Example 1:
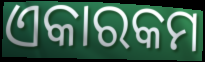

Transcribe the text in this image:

ଏକାରକମ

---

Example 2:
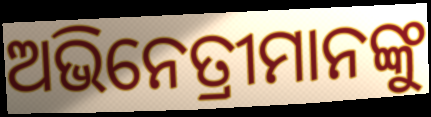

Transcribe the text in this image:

ଅଭିନେତ୍ରୀମାନଙ୍କୁ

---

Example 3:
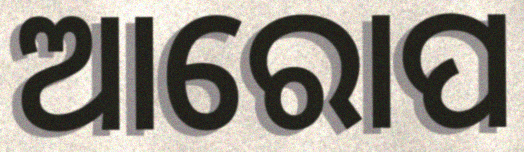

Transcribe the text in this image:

ଆରୋପ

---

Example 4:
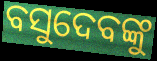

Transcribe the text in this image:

ବସୁଦେବଙ୍କୁ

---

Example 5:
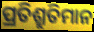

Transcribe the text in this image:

ପ୍ରତିଶ୍ରୁତିମାନ